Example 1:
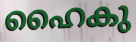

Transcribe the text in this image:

ഹൈകു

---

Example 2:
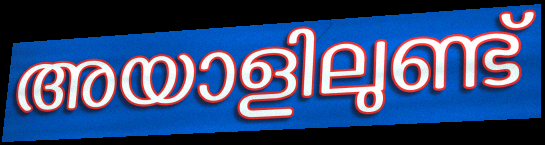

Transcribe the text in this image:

അയാളിലുണ്ട്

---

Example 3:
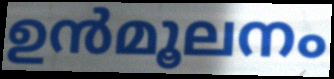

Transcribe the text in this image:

ഉൻമൂലനം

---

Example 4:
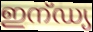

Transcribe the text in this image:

ഇന്ഡ്യ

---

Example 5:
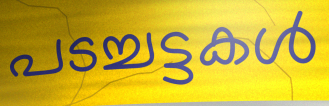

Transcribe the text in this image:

പടച്ചട്ടകൾ